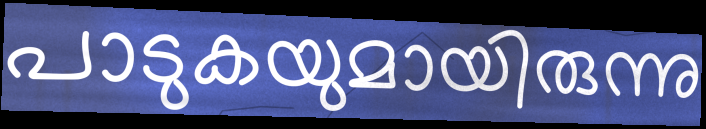
പാടുകയുമായിരുന്നു